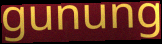
gunung